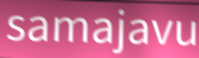
samajavu